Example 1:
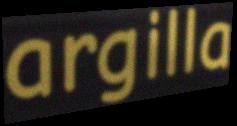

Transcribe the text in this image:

argilla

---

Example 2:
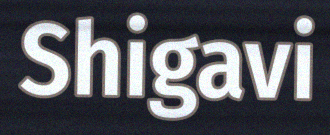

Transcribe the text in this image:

Shigavi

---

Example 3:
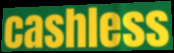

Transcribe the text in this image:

cashless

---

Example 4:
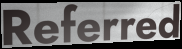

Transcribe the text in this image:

Referred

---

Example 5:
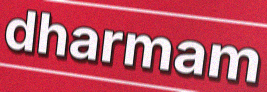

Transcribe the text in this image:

dharmam